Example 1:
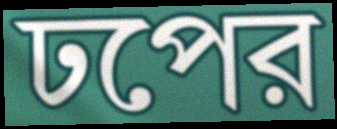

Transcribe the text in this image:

ঢপের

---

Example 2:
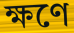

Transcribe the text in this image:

ক্ষণে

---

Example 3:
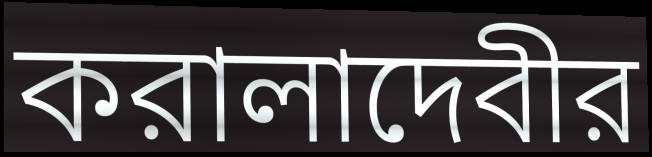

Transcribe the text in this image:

করালাদেবীর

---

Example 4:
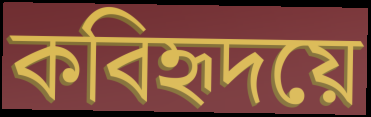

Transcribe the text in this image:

কবিহৃদয়ে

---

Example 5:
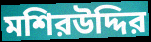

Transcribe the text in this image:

মশিরউদ্দির